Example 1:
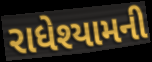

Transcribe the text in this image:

રાધેશ્યામની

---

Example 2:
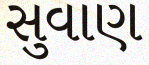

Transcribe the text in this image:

સુવાણ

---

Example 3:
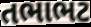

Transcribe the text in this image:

તભાભટ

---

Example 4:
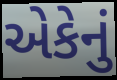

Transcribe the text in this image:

એકેનું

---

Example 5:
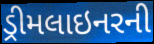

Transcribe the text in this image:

ડ્રીમલાઇનરની